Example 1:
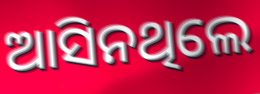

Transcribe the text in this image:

ଆସିନଥିଲେ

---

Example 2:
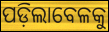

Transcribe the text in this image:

ପଡ଼ିଲାବେଳକୁ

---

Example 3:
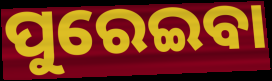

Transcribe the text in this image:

ପୁରେଇବା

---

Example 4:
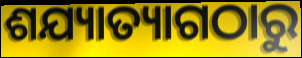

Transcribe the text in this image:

ଶଯ୍ୟାତ୍ୟାଗଠାରୁ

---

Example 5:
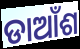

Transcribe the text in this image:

ଡାଆଁଶ